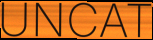
UNCAT